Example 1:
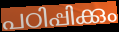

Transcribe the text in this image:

പഠിപ്പിക്കും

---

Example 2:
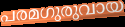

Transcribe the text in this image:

പരമഗുരുവായ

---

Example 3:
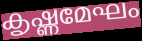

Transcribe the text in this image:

കൃഷ്ണമേഘം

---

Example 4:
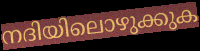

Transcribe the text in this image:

നദിയിലൊഴുക്കുക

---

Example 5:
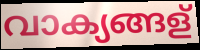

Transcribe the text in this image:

വാക്യങ്ങള്